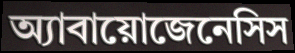
অ্যাবায়োজেনেসিস